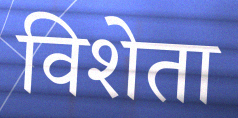
विशेता